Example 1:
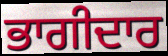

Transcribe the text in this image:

ਭਾਗੀਦਾਰ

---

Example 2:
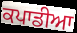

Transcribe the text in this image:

ਕਪਾਡੀਆ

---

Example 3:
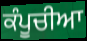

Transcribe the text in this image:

ਕੰਪੂਚੀਆ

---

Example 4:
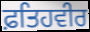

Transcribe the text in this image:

ਫ਼ਤਿਹਵੀਰ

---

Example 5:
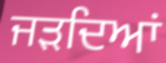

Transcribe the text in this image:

ਜੜਦਿਆਂ